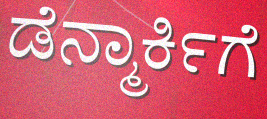
ಡೆನ್ಮಾರ್ಕಿಗೆ